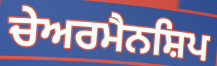
ਚੇਅਰਮੈਨਸ਼ਿਪ